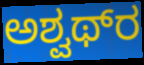
ಅಶ್ವಥ್‌ರ